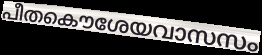
പീതകൌശേയവാസസം